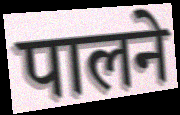
पालने